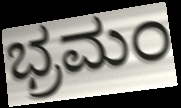
ಭ್ರಮಂ